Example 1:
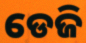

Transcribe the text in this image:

ଡେଜି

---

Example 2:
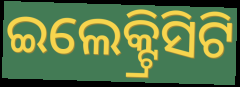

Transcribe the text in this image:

ଇଲେକ୍ଟ୍ରିସିଟି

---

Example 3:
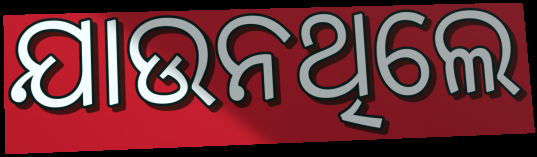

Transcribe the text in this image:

ଯାଉନଥିଲେ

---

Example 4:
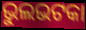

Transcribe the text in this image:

ଭୁଲଭଟକା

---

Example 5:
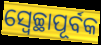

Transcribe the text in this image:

ସ୍ଵେଚ୍ଛାପୂର୍ବକ